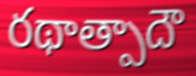
రథాత్పాదౌ